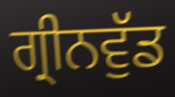
ਗ੍ਰੀਨਵੁੱਡ